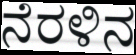
ನೆರಳಿನ